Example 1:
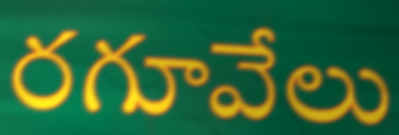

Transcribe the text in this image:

రగూవేలు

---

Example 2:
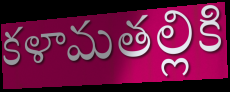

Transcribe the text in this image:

కళామతల్లికి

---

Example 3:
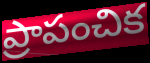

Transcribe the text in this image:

ప్రాపంచిక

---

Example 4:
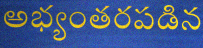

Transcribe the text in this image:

అభ్యంతరపడిన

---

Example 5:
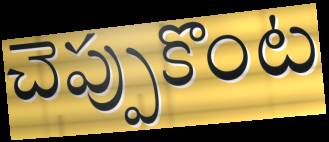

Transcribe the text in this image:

చెప్పుకొంట